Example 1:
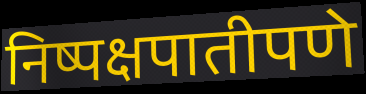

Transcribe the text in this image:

निष्पक्षपातीपणे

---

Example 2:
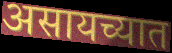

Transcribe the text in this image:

असायच्यात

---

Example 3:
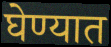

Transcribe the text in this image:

घेण्यात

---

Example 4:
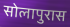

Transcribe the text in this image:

सोलापुरास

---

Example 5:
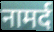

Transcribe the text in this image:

नामर्द